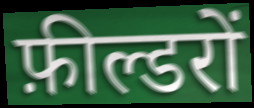
फ़ील्डरों